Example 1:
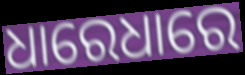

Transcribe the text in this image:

ଧାରେଧାରେ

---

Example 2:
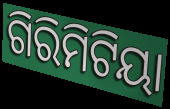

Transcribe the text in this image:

ଗିରିମିଟିୟା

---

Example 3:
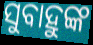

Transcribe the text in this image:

ସୁବାହୁଙ୍କ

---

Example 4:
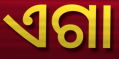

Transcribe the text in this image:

ଏଗା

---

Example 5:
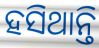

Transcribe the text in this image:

ହସିଥାନ୍ତି